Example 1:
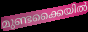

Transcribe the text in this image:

മുണ്ടക്കൈയിൽ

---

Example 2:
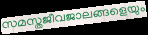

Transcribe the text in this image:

സമസ്തജീവജാലങ്ങളെയും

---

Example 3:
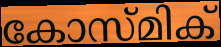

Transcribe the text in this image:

കോസ്മിക്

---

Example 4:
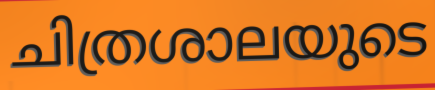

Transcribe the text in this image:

ചിത്രശാലയുടെ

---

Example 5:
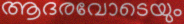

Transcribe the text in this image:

ആദരവോടെയും